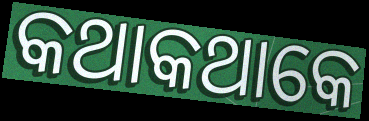
କଥାକଥାକେ